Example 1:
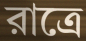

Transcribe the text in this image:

রাত্রে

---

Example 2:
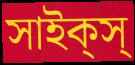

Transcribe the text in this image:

সাইক্‌স্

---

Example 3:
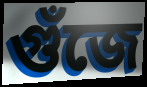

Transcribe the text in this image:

গুঁজে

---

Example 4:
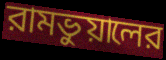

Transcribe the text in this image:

রামভুয়ালের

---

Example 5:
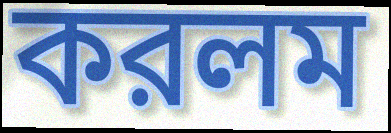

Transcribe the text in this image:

করলম